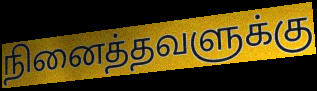
நினைத்தவளுக்கு